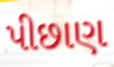
પીછાણ